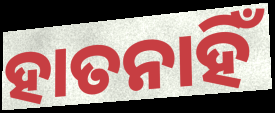
ହାତନାହିଁ